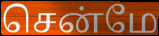
சென்மே